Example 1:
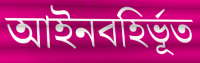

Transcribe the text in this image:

আইনবহির্ভূত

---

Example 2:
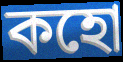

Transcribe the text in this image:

কহো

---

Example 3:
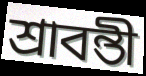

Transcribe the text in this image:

শ্রাবন্তী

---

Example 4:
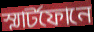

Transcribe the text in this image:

স্মার্টফোনে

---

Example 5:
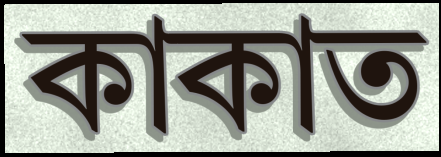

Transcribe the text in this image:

কাকাত